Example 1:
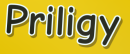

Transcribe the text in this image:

Priligy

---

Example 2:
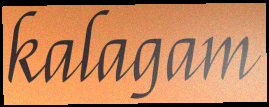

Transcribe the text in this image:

kalagam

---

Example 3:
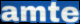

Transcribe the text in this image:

amte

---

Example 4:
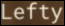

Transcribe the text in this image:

Lefty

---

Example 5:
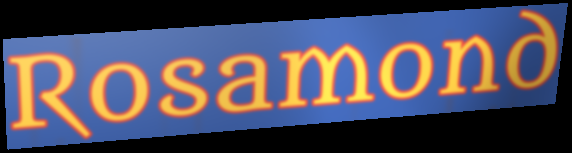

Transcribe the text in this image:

Rosamond